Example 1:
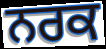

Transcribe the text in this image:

ਨਰਕ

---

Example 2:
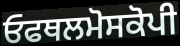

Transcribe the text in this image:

ਓਫਥਲਮੋਸਕੋਪੀ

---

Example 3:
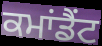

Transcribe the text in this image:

ਕਮਾਂਡੈਂਟ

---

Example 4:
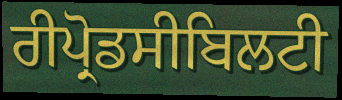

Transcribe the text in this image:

ਰੀਪ੍ਰੋਡਸੀਬਿਲਟੀ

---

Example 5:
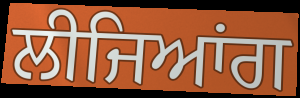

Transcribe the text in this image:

ਲੀਜਿਆਂਗ